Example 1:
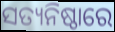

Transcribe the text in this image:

ସତ୍ୟନିଷ୍ଠାରେ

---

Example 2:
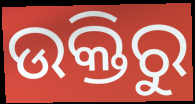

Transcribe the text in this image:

ଉକ୍ତିରୁ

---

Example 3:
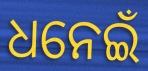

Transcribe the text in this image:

ଧନେଇଁ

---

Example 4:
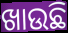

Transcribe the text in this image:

ଖାଉଛି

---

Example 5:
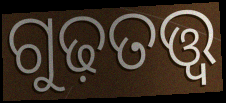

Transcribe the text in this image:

ଗୁଢ଼ତତ୍ତ୍ୱ